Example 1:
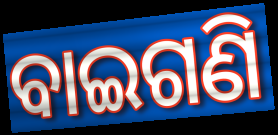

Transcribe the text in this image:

ବାଇଗଣି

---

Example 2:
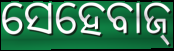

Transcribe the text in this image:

ସେହେବାଜ୍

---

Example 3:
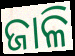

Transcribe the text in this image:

ଜାଳି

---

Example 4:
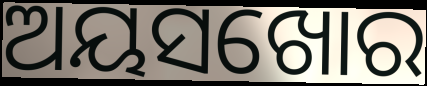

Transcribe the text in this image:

ଅୟସଖୋର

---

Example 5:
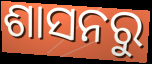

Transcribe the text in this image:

ଶାସନରୁ